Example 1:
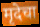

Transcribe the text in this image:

मृदेचा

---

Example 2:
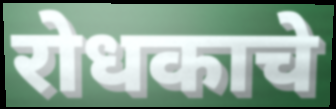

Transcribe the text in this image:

रोधकाचे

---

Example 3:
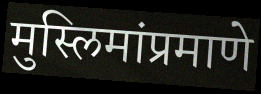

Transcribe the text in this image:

मुस्लिमांप्रमाणे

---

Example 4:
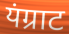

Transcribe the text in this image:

यंग्राट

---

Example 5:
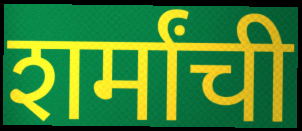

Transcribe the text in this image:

शर्मांची